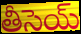
తీసెయ్